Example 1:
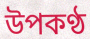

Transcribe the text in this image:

উপকণ্ঠ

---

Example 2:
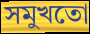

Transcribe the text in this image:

সমুখতো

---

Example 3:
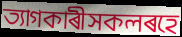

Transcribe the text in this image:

ত্যাগকাৰীসকলৰহে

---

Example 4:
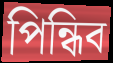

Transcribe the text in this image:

পিন্ধিব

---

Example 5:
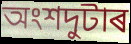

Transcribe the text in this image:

অংশদুটাৰ